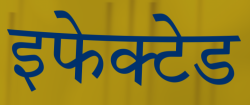
इफेक्टेड